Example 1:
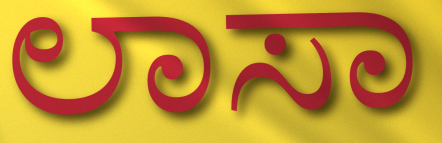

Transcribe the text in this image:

ಲಾಸಾ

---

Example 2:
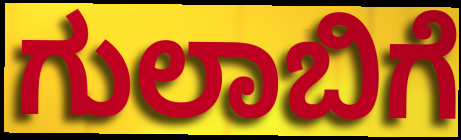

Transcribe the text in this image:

ಗುಲಾಬಿಗೆ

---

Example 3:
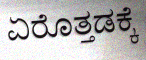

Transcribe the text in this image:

ಏರೊತ್ತಡಕ್ಕೆ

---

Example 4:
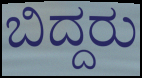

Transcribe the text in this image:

ಬಿದ್ದರು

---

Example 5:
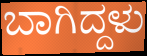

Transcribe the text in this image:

ಬಾಗಿದ್ದಳು